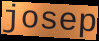
josep